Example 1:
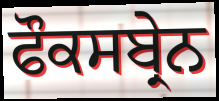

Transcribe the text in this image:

ਫੌਕਸਬ੍ਰੇਨ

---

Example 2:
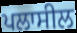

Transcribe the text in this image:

ਪਲਾਸੀਲ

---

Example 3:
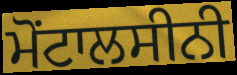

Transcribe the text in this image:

ਮੋਂਟਾਲਸੀਨੀ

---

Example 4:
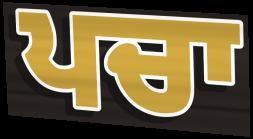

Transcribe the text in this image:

ਪਚਾ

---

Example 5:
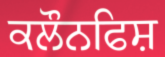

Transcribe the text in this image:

ਕਲੌਨਫਿਸ਼